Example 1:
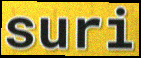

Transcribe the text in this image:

suri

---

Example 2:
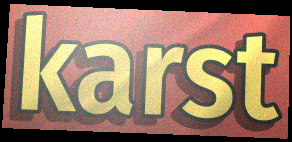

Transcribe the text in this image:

karst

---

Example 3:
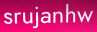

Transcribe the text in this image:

srujanhw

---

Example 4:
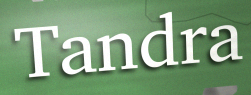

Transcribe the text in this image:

Tandra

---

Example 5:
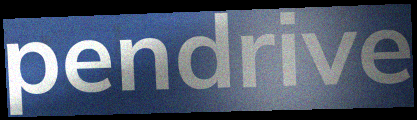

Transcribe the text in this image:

pendrive